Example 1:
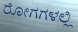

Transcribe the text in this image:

ರೋಗಗಳಲ್ಲಿ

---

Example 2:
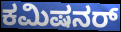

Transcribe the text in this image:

ಕಮಿಷನರ್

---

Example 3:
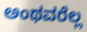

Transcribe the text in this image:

ಅಂಥವರೆಲ್ಲ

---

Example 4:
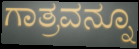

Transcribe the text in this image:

ಗಾತ್ರವನ್ನೂ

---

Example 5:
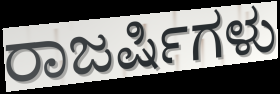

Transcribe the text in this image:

ರಾಜರ್ಷಿಗಳು